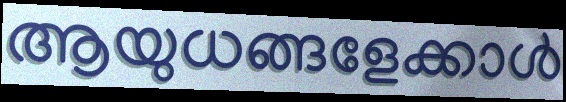
ആയുധങ്ങളേക്കാൾ